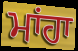
ਮਾਂਹਾ